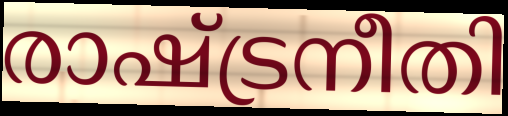
രാഷ്ട്രനീതി